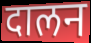
दालन